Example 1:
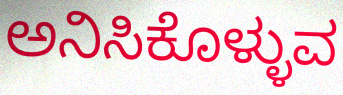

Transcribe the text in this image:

ಅನಿಸಿಕೊಳ್ಳುವ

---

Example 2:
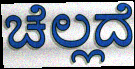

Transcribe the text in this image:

ಚೆಲ್ಲದೆ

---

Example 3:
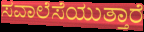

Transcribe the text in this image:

ಸವಾಲೆಸೆಯುತ್ತಾರೆ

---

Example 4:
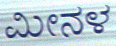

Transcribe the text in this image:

ಮೀನಳ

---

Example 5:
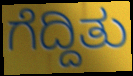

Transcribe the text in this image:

ಗೆದ್ದಿತು